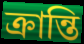
ক্ৰান্তি